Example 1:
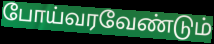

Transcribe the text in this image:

போய்வரவேண்டும்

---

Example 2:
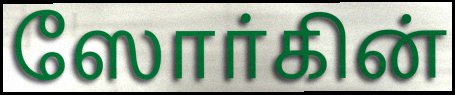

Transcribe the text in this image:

ஸோர்கின்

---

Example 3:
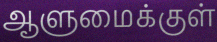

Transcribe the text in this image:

ஆளுமைக்குள்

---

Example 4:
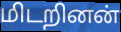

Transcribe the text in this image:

மிடறினன்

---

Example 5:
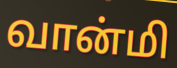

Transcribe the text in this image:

வான்மி